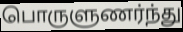
பொருளுணர்ந்து